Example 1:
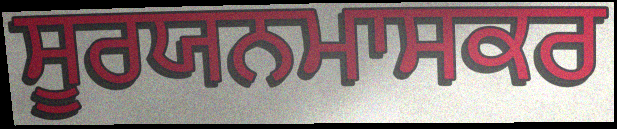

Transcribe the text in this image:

ਸੂਰਯਨਮਾਸਕਰ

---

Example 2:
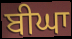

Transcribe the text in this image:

ਬੀਘਾ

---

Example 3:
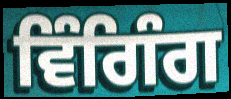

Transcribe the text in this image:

ਵਿੰਗਿੰਗ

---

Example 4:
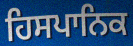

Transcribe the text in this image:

ਹਿਸਪਾਨਿਕ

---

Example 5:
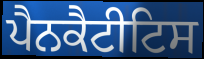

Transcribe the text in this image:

ਪੈਨਕੈਟੀਟਿਸ